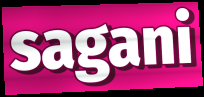
sagani